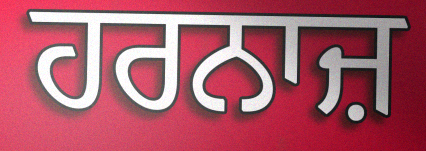
ਹਰਨਾਜ਼